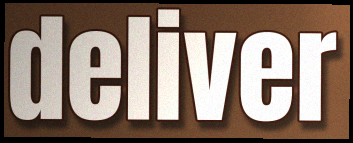
deliver